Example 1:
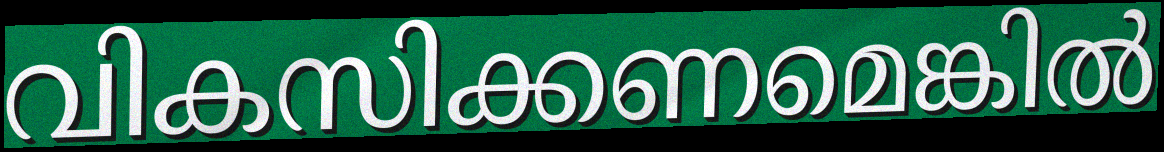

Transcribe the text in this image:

വികസിക്കണമെങ്കിൽ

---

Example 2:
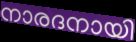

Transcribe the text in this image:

നാരദനായി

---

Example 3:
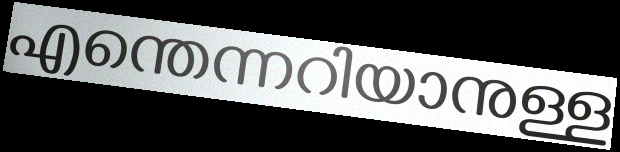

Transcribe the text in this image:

എന്തെന്നറിയാനുള്ള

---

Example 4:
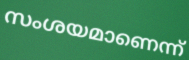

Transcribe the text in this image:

സംശയമാണെന്ന്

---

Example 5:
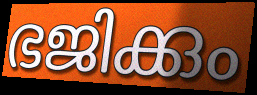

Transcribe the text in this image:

ഭജിക്കും